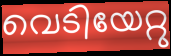
വെടിയേറ്റു